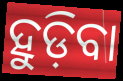
ହୁଡ଼ିବା